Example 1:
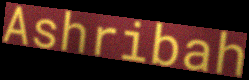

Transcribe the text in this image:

Ashribah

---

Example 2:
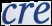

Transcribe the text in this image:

cre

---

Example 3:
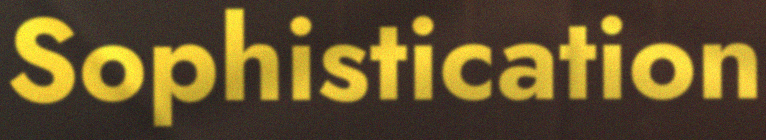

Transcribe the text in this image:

Sophistication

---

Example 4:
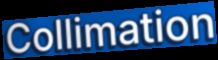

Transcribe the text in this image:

Collimation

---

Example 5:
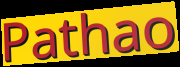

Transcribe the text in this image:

Pathao